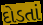
દોડતાં